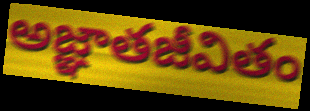
అజ్ఞాతజీవితం